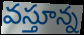
వస్తూన్న